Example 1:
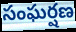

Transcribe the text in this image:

సంఘర్షణ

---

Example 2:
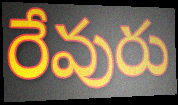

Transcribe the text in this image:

రేవురు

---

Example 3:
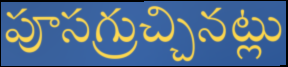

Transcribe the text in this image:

పూసగ్రుచ్చినట్లు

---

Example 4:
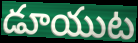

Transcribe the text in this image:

డూయుట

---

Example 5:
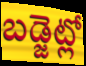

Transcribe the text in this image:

బడ్జెట్లో